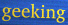
geeking